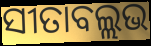
ସୀତାବଲ୍ଲଭ